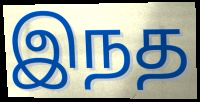
இநத